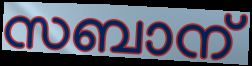
സബാന്